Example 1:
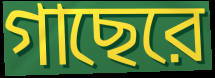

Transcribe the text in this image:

গাছেরে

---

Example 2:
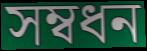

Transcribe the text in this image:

সম্বধন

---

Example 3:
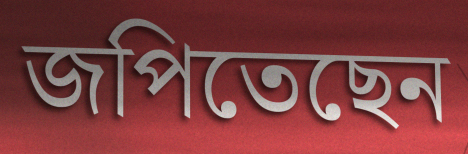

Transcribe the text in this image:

জপিতেছেন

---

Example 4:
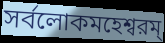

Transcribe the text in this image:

সর্বলোকমহেশ্বরম্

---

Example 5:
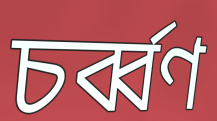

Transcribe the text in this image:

চর্ব্বণ